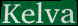
Kelva